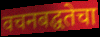
वचनबद्धतेचा